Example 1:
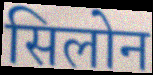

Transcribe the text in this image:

सिलोन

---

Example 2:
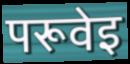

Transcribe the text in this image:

परूवेइ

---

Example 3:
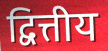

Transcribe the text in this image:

द्वित्तीय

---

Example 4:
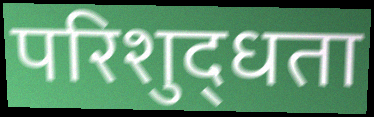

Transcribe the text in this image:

परिशुद्धता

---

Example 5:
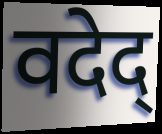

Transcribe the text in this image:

वदेद्